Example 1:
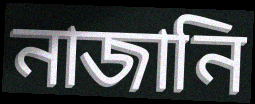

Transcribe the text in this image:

নাজানি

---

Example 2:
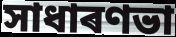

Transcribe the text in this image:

সাধাৰণভা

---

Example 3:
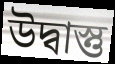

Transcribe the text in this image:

উদ্বাস্তু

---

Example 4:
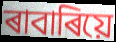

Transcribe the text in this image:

ৰাবাৰিয়ে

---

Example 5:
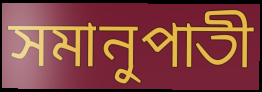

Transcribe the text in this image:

সমানুপাতী